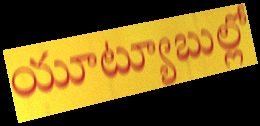
యూట్యూబుల్లో